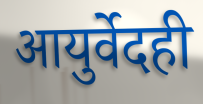
आयुर्वेदही